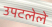
उपटलेले